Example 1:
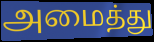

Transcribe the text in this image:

அமைத்து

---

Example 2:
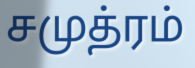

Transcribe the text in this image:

சமுத்ரம்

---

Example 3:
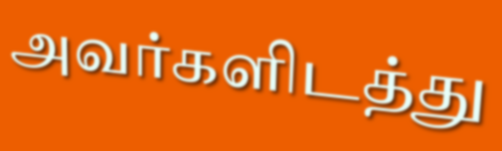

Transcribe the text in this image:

அவர்களிடத்து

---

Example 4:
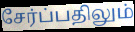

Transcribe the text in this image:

சேர்ப்பதிலும்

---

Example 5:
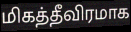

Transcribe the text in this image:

மிகத்தீவிரமாக